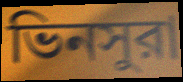
ভিনসুরা